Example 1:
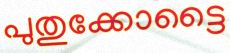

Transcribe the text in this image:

പുതുക്കോട്ടൈ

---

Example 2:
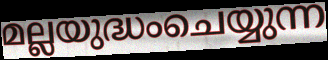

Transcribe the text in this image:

മല്ലയുദ്ധംചെയ്യുന്ന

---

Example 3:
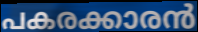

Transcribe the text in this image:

പകരക്കാരൻ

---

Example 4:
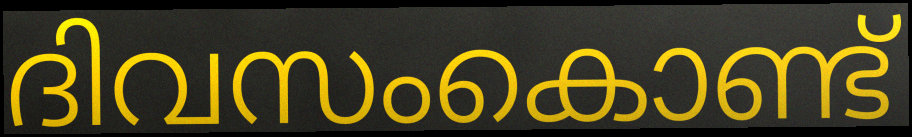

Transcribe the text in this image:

ദിവസംകൊണ്ട്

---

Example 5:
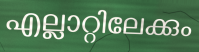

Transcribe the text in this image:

എല്ലാറ്റിലേക്കും